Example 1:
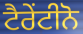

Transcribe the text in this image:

ਟੈਰੇਂਟੀਨੋ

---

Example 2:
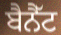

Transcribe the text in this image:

ਬੈਨੈੱਟ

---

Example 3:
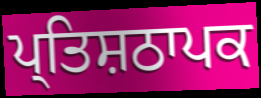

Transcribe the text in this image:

ਪ੍ਤਿਸ਼ਠਾਪਕ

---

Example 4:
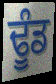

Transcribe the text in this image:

ਢੂੰਡ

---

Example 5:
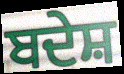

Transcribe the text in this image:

ਬਦੇਸ਼